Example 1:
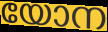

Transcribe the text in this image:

യോന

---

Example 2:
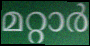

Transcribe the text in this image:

മറ്റാർ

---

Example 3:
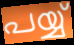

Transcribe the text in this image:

പയ്യ്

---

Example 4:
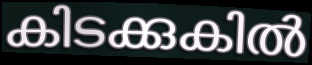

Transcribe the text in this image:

കിടക്കുകിൽ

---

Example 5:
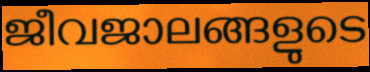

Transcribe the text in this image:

ജീവജാലങ്ങളുടെ